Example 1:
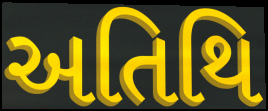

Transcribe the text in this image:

અતિથિ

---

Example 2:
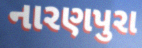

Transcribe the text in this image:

નારણપુરા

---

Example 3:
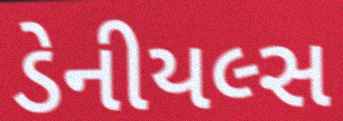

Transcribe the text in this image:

ડેનીયલ્સ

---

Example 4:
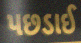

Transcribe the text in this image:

પછડાઈ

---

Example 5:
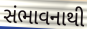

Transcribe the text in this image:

સંભાવનાથી